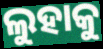
ଲୁହାକୁ